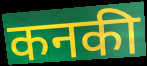
कनकी